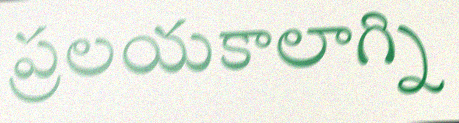
ప్రలయకాలాగ్ని